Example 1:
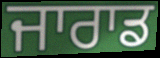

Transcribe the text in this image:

ਜਾਰਾਡ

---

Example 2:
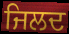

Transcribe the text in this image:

ਜਿਲਦ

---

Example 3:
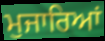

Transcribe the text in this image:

ਮੁਜਾਰਿਆਂ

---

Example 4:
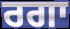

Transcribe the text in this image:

ਰਗਾ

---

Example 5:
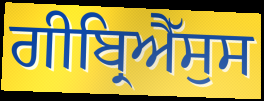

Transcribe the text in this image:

ਗੀਬ੍ਰਿਐੱਸੁਸ